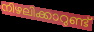
നിഴലിക്കാറുണ്ട്